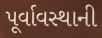
પૂર્વાવસ્થાની